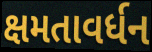
ક્ષમતાવર્ધન